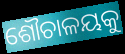
ଶୌଚାଳୟକୁ